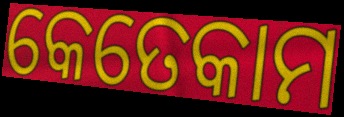
କେତେକାମ